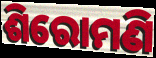
ଶିରୋମଣି